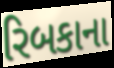
રિબકાના